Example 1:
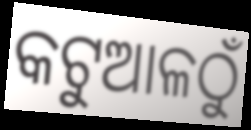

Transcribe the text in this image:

କଟୁଆଳଠୁଁ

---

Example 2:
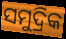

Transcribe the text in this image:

ସମୁଦ୍ରିକ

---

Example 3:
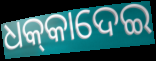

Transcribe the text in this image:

ଧକ୍‌କାଦେଇ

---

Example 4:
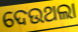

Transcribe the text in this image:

ଦେଉଥଲା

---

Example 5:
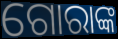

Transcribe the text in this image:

ଗୋରାଙ୍କ